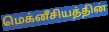
மெக்னீசியத்தின்